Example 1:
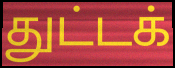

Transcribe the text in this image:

துட்டக்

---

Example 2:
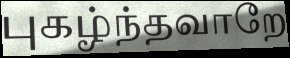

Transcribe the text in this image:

புகழ்ந்தவாறே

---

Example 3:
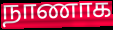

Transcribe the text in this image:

நாணாக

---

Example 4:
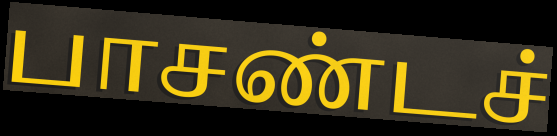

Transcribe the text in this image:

பாசண்டச்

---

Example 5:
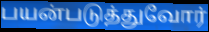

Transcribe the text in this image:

பயன்படுத்துவோர்